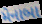
મેનાબા